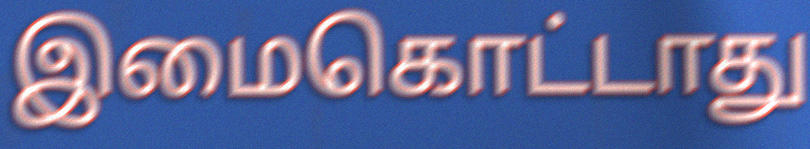
இமைகொட்டாது